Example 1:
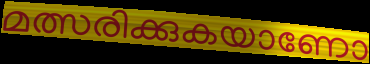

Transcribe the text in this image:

മത്സരിക്കുകയാണോ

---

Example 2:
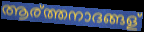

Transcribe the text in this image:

ആര്ത്തനാദങ്ങള്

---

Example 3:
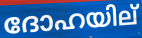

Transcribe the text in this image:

ദോഹയില്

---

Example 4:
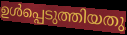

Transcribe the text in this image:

ഉൾപ്പെടുത്തിയതു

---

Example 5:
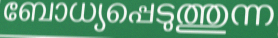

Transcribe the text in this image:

ബോധ്യപ്പെടുത്തുന്ന